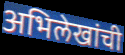
अभिलेखांची